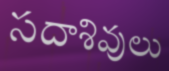
సదాశివులు